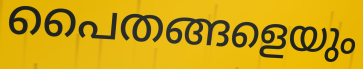
പൈതങ്ങളെയും